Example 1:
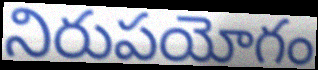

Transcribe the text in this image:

నిరుపయోగం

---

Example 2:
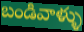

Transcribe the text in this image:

బండివాళ్ళు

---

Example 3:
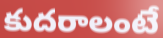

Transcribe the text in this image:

కుదరాలంటే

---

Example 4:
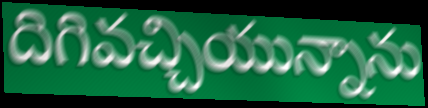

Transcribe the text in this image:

దిగివచ్చియున్నాను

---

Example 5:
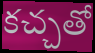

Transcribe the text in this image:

కచ్చతో